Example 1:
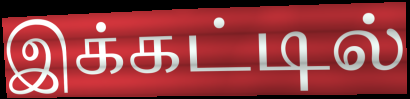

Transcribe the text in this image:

இக்கட்டில்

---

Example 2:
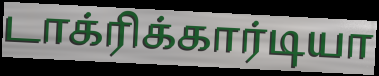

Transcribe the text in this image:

டாக்ரிக்கார்டியா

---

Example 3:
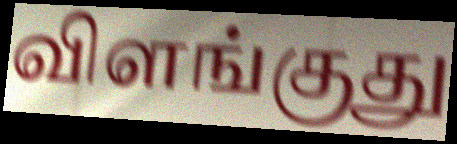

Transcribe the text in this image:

விளங்குது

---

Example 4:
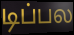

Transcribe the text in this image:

டிப்பல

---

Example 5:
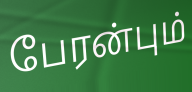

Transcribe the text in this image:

பேரன்பும்